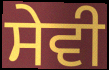
ਸੇਵੀ